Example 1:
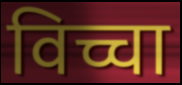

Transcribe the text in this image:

विच्चा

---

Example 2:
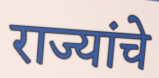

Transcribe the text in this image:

राज्यांचे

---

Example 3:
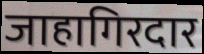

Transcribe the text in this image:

जाहागिरदार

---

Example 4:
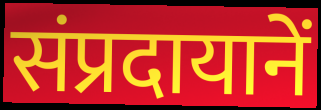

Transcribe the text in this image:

संप्रदायानें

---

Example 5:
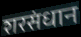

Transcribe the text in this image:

शरसंधान